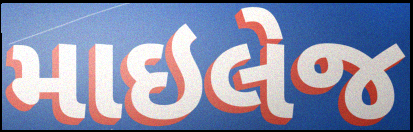
માઇલેજ